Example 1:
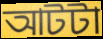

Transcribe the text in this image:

আটটা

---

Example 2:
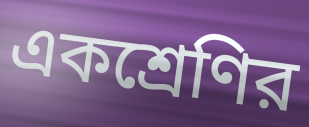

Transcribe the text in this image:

একশ্রেণির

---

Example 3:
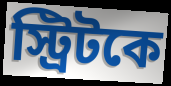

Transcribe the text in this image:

স্ট্রিটকে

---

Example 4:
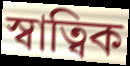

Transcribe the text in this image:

স্বাত্বিক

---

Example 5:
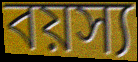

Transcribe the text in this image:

বয়স্য